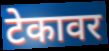
टेकावर